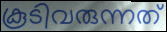
കൂടിവരുന്നത്